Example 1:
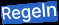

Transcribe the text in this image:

Regeln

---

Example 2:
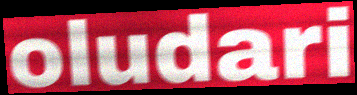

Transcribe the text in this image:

oludari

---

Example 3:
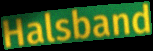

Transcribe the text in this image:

Halsband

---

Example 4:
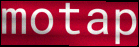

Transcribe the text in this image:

motap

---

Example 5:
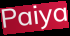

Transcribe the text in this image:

Paiya